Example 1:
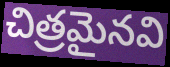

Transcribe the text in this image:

చిత్రమైనవి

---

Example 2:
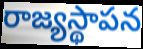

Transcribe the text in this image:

రాజ్యస్థాపన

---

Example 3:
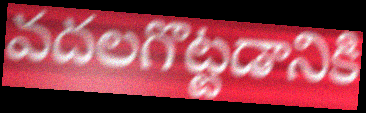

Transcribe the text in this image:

వదలగొట్టడానికి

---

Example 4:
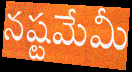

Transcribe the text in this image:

నష్టమేమీ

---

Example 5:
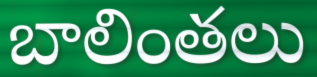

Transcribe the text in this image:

బాలింతలు